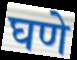
घणे